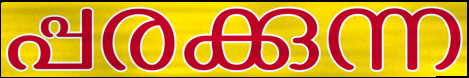
പ്പരക്കുന്ന